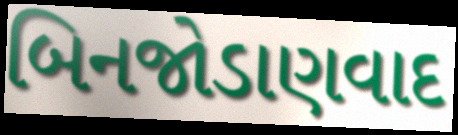
બિનજોડાણવાદ